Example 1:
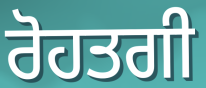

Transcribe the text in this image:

ਰੋਹਤਗੀ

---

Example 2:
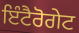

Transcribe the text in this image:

ਇੰਟੈਰੋਗੇਟ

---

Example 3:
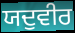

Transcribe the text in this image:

ਯਦੁਵੀਰ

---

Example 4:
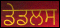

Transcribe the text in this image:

ਡੇਡਲਸ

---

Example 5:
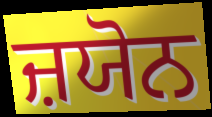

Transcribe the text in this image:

ਜ਼ਯੋਨ